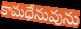
కామధేనువును